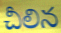
చీలిన